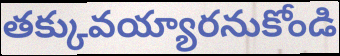
తక్కువయ్యారనుకోండి